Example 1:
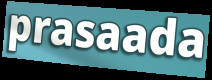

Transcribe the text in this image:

prasaada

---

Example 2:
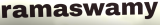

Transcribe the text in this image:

ramaswamy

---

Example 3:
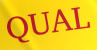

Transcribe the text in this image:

QUAL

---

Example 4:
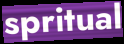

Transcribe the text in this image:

spritual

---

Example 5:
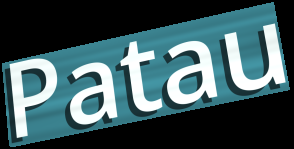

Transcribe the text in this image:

Patau